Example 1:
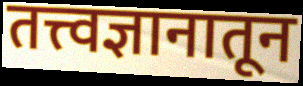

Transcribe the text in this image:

तत्त्वज्ञानातून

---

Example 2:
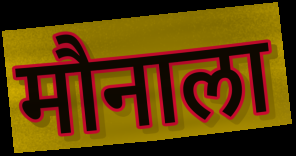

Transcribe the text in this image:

मौनाला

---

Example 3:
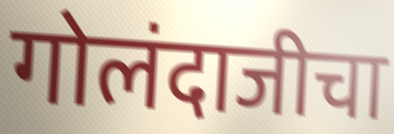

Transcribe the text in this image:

गोलंदाजीचा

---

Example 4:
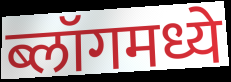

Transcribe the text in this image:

ब्लॉगमध्ये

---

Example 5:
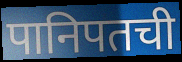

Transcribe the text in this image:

पानिपतची